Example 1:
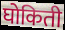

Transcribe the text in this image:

घोकिती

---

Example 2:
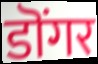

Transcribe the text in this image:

डॊंगर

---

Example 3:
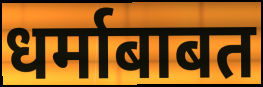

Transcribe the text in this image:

धर्माबाबत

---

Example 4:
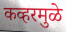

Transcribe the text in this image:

कव्हरमुळे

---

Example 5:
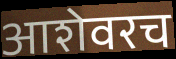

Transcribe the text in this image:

आशेवरच